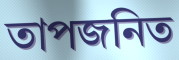
তাপজনিত